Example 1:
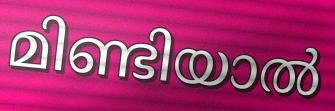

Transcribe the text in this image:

മിണ്ടിയാൽ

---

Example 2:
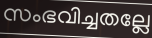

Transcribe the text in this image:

സംഭവിച്ചതല്ലേ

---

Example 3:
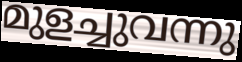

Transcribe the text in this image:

മുളച്ചുവന്നു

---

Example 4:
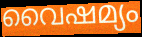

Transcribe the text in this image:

വൈഷമ്യം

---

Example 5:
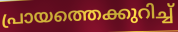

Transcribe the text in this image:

പ്രായത്തെക്കുറിച്ച്